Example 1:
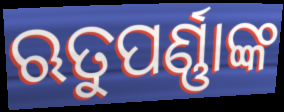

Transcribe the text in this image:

ଋତୁପର୍ଣ୍ଣାଙ୍କ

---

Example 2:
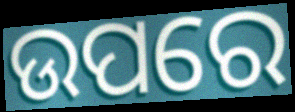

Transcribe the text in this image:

ଉପରେ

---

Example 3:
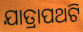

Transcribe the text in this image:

ଯାତ୍ରାପଥଟି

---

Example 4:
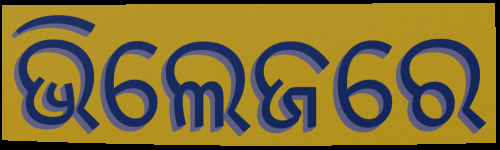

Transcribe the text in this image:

ଭିଲେଜରେ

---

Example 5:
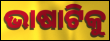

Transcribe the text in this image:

ଭାଷାଟିକୁ